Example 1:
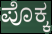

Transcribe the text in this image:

ಪೊಕ್ಕ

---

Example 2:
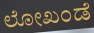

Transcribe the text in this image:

ಲೋಖಂಡೆ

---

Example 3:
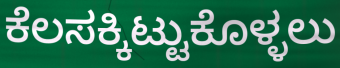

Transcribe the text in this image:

ಕೆಲಸಕ್ಕಿಟ್ಟುಕೊಳ್ಳಲು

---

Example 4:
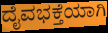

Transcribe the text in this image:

ದೈವಭಕ್ತೆಯಾಗಿ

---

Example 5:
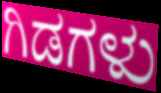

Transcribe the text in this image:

ಗಿಡಗಳು